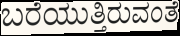
ಬರೆಯುತ್ತಿರುವಂತೆ